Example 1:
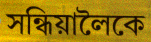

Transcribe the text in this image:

সন্ধিয়ালৈকে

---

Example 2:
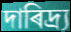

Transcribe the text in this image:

দাৰিদ্ৰ্য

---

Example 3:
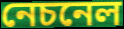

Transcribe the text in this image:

নেচনেল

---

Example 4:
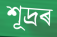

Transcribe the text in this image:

শূদ্ৰৰ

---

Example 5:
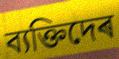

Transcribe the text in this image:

ব্যক্তিদেৰ